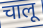
चालू